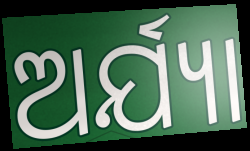
ଅର୍ଯ୍ୟା